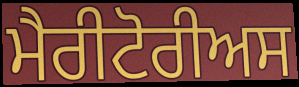
ਮੈਰੀਟੋਰੀਅਸ